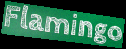
Flamingo